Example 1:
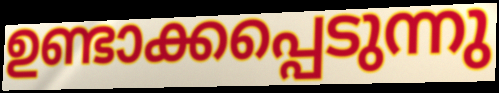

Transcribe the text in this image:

ഉണ്ടാക്കപ്പെടുന്നു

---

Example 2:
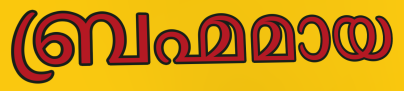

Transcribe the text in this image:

ബ്രഹ്മമായ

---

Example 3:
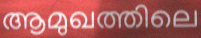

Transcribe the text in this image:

ആമുഖത്തിലെ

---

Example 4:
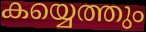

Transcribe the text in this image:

കയ്യെത്തും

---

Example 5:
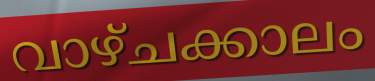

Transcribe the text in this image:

വാഴ്ചക്കാലം